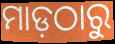
ମାଡ଼ଠାରୁ